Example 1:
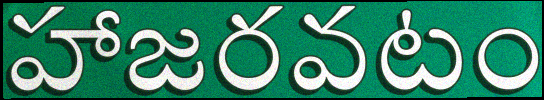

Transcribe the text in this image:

హాజరవటం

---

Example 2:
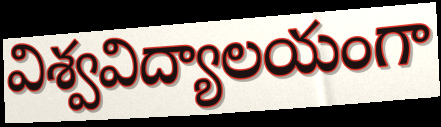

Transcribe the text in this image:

విశ్వవిద్యాలయంగా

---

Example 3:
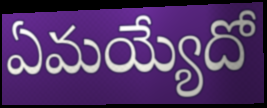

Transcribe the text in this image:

ఏమయ్యేదో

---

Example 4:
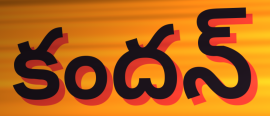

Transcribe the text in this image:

కందన్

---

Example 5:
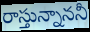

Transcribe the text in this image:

రాస్తున్నాననీ